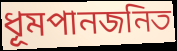
ধূমপানজনিত